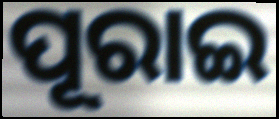
ପୂରାଇ